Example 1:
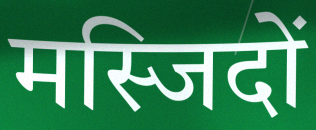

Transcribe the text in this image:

मस्जिदों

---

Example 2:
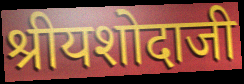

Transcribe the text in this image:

श्रीयशोदाजी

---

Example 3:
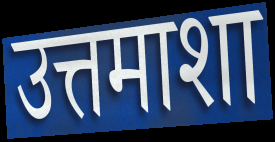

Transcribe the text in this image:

उत्तमाशा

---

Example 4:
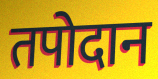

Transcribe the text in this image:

तपोदान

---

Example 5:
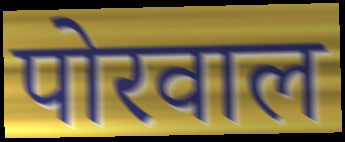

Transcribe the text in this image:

पोरवाल